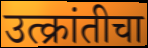
उत्क्रांतीचा